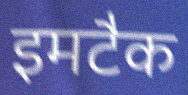
इमटैक